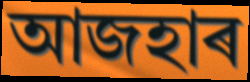
আজহাৰ